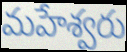
మహేశ్వరు